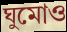
ঘুমোও